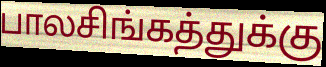
பாலசிங்கத்துக்கு